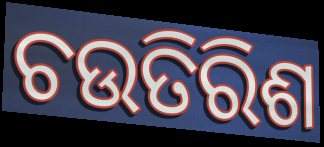
ଚଉତିରିଶ